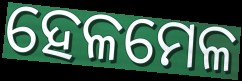
ହେଳମେଳ